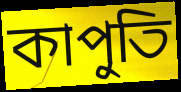
কাপুতি